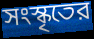
সংস্কৃতের